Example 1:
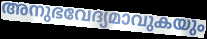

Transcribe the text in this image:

അനുഭവേദ്യമാവുകയും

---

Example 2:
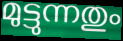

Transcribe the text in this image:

മുട്ടുന്നതും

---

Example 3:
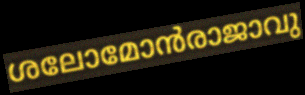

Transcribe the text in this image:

ശലോമോൻരാജാവു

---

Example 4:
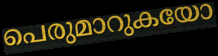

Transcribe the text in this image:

പെരുമാറുകയോ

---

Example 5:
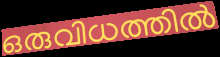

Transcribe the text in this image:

ഒരുവിധത്തിൽ